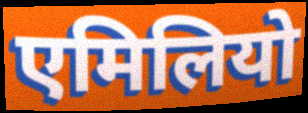
एमिलियो